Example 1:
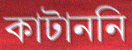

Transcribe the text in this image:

কাটাননি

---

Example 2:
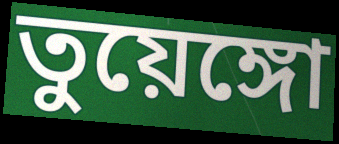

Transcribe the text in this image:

তুয়েঙ্গো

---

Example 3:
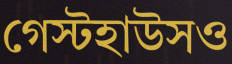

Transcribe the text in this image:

গেস্টহাউসও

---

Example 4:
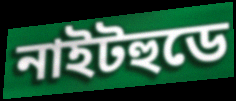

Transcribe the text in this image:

নাইটহুডে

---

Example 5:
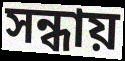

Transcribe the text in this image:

সন্ধায়